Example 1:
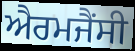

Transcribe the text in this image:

ਐਰਮਜੈਂਸੀ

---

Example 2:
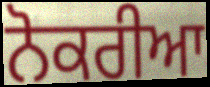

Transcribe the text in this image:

ਨੋਕਰੀਆ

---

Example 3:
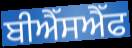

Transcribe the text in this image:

ਬੀਐੱਸਐੱਫ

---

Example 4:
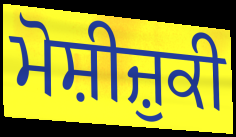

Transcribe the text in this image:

ਮੋਸ਼ੀਜ਼ੁਕੀ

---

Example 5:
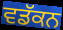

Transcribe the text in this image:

ਵਡੱਕਨ